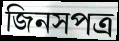
জিনসপত্র